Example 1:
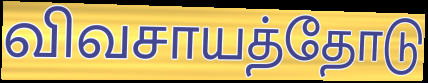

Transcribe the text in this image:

விவசாயத்தோடு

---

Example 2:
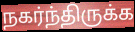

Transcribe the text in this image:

நகர்ந்திருக்க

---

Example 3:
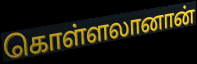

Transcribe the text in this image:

கொள்ளலானான்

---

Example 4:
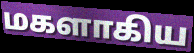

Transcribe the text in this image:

மகளாகிய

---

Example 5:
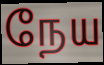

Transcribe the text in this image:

நேய